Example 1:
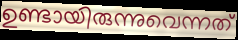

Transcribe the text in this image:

ഉണ്ടായിരുന്നുവെന്നത്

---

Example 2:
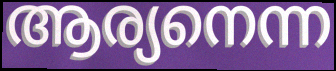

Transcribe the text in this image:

ആര്യനെന്ന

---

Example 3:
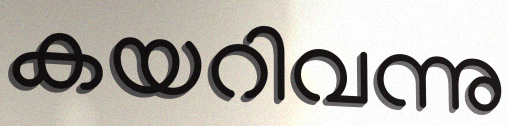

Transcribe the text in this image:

കയറിവന്നു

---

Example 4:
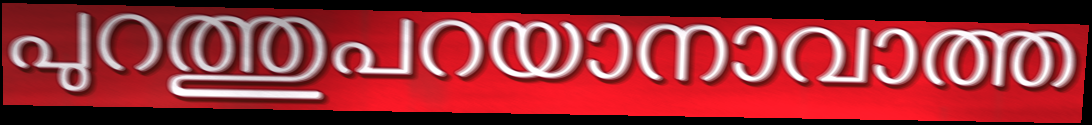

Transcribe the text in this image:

പുറത്തുപറയാനാവാത്ത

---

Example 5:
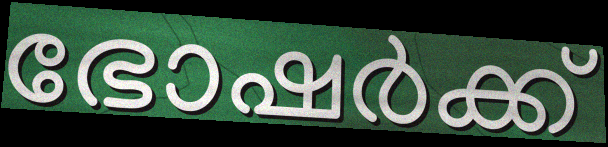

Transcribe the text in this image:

ഭോഷർക്ക്